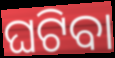
ଘଟିବା